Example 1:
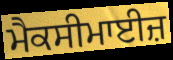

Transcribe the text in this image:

ਮੈਕਸੀਮਾਈਜ਼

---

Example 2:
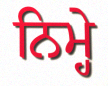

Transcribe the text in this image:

ਨਿਮ੍ਹੇ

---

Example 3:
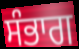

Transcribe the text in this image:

ਸੰਭਾਗ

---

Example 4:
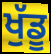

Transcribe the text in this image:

ਖੁੱਡੂ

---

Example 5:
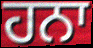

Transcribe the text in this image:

ਹਨਾ